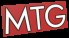
MTG